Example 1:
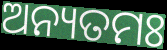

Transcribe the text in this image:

ଅନ୍ୟତମଃ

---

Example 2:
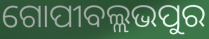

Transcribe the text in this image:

ଗୋପୀବଲ୍ଲଭପୁର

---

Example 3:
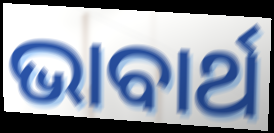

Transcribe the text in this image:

ଭାବାର୍ଥ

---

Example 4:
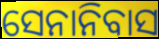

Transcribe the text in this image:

ସେନାନିବାସ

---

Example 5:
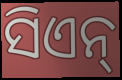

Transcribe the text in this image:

ସିଏନ୍